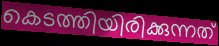
കെടത്തിയിരിക്കുന്നത്